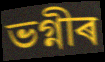
ভগ্নীৰ